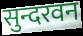
सुन्दरवन